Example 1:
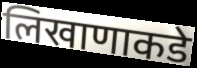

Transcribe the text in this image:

लिखाणाकडे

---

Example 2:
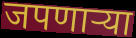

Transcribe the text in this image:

जपणाऱ्या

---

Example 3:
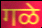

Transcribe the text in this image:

गळे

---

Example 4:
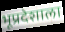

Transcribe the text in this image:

भूप्रदेशाला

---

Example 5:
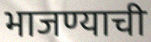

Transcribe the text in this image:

भाजण्याची